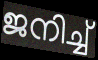
ജനിച്ച്